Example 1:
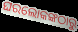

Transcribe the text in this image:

ଘରଲୋକଙ୍କଠାରୁ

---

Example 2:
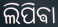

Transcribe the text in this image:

ଲିପିଵା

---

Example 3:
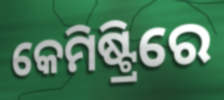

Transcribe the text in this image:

କେମିଷ୍ଟ୍ରିରେ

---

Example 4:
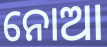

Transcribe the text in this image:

ନୋଆ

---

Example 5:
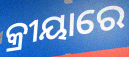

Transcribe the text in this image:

କ୍ରୀୟାରେ